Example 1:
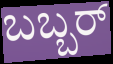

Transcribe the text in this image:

ಬಬ್ಬರ್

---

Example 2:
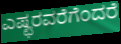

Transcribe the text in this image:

ಎಷ್ಟರವರೆಗೆಂದರೆ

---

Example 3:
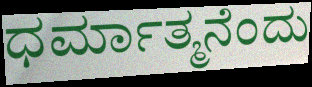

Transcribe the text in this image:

ಧರ್ಮಾತ್ಮನೆಂದು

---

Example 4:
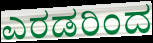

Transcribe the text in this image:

ಎರಡರಿಂದ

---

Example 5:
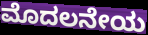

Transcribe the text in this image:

ಮೊದಲನೇಯ